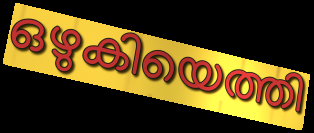
ഒഴുകിയെത്തി